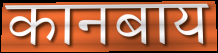
कानबाय